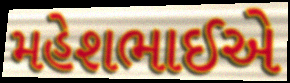
મહેશભાઈએ